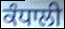
ਕੰਧਾਲੀ